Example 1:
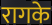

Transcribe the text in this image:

रागके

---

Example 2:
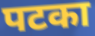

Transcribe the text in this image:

पटका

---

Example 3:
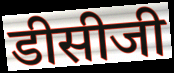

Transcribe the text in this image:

डीसीजी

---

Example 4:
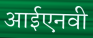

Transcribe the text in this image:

आईएनवी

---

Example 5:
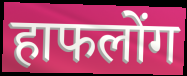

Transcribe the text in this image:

हाफलोंग